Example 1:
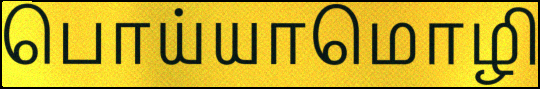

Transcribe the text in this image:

பொய்யாமொழி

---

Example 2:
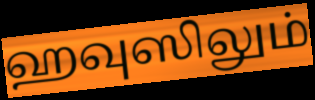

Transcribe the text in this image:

ஹவுஸிலும்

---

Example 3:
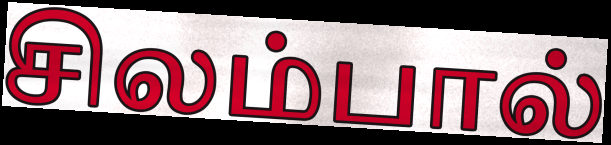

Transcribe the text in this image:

சிலம்பால்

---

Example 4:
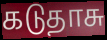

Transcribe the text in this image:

கடுதாசு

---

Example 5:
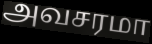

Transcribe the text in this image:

அவசரமா